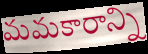
మమకారాన్ని